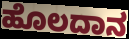
ಹೊಲದಾನ